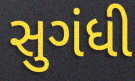
સુગંધી